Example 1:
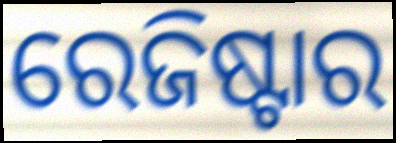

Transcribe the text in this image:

ରେଜିଷ୍ଟାର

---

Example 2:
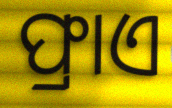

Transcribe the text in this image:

ଫ୍ରାଏ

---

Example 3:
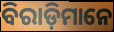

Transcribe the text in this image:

ବିରାଡ଼ିମାନେ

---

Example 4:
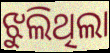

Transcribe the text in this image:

ଝୁଲିଥିଲା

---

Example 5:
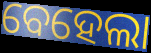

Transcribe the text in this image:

ବେହେଲା